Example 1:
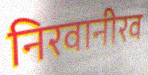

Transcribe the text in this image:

निरवानीरव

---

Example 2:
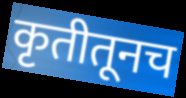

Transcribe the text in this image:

कृतीतूनच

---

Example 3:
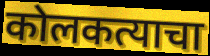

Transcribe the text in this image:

कोलकत्याचा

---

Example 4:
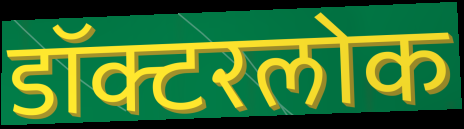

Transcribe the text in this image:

डॉक्टरलोक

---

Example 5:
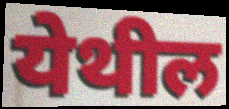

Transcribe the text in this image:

येथील